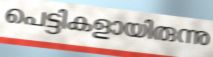
പെട്ടികളായിരുന്നു